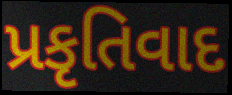
પ્રકૃતિવાદ